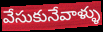
వేసుకునేవాళ్ళు